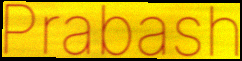
Prabash